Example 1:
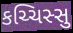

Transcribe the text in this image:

કચ્ચિસ્સુ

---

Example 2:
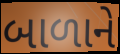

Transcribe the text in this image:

બાળાને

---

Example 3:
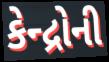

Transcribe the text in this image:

કેન્દ્રોની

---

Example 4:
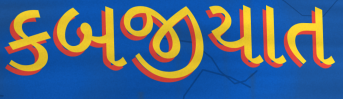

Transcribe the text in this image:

કબજીયાત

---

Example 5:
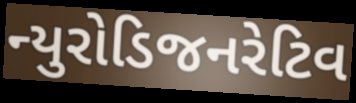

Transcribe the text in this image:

ન્યુરોડિજનરેટિવ